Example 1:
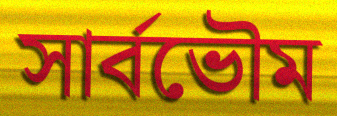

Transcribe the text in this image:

সাৰ্বভৌম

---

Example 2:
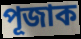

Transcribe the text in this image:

পূজাক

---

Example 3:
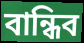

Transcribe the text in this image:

বান্ধিব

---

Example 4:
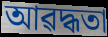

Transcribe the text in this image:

আৱদ্ধতা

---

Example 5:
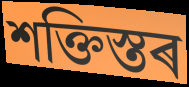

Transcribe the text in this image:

শক্তিস্তৰ